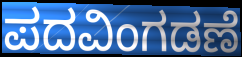
ಪದವಿಂಗಡಣೆ